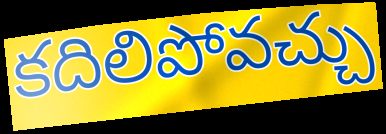
కదిలిపోవచ్చు